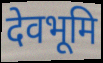
देवभूमि